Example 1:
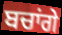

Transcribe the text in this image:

ਬਚਾਂਗੇ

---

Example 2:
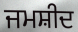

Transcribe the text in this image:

ਜਮਸ਼ੀਦ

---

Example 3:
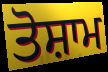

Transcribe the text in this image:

ਤੋਸ਼ਾਮ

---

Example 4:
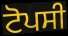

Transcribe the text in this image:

ਟੋਪਸੀ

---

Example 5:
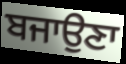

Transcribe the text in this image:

ਬਜਾਉਣਾ